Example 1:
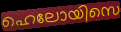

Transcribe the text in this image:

ഹെലോയിസെ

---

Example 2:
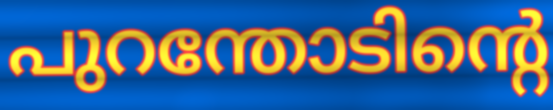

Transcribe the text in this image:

പുറന്തോടിന്റെ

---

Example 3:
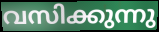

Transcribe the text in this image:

വസിക്കുന്നു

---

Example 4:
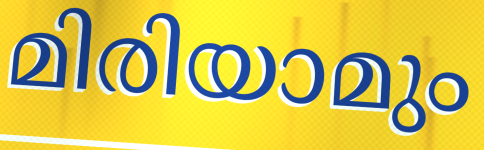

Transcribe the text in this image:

മിരിയാമും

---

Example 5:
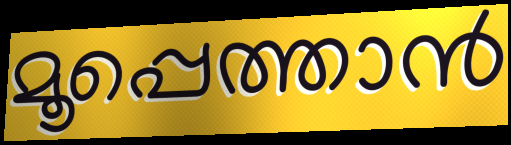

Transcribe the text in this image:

മൂപ്പെത്താൻ